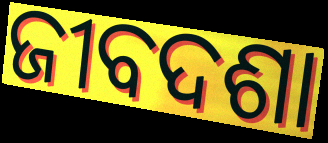
ଜୀବଦଶା